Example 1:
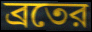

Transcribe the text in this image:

ব্রতের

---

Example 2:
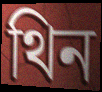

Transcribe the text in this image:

থিন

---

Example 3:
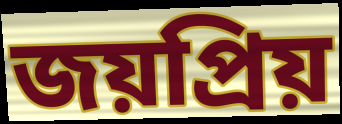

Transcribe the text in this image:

জয়প্রিয়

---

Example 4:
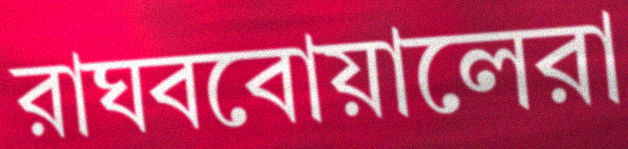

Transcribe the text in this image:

রাঘববোয়ালেরা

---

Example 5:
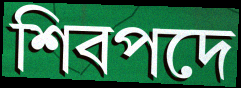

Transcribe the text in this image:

শিবপদে